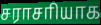
சராசரியாக